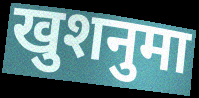
खुशनुमा